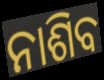
ନାଶିବ